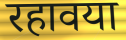
रहावया